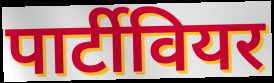
पार्टीवियर